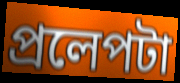
প্রলেপটা